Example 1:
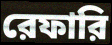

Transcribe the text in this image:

রেফারি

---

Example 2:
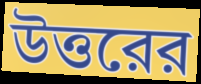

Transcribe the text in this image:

উত্তরের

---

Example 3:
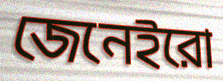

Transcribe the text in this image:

জেনেইরো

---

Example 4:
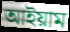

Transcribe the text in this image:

আইয়াম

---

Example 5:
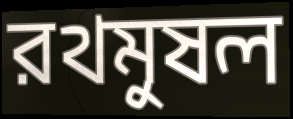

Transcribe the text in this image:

রথমুষল